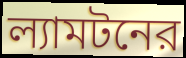
ল্যামটনের